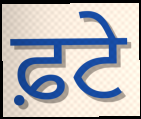
ਫ਼ਟੇ